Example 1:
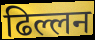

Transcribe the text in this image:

ढिल्लन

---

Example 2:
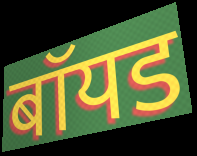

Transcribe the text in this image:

बॉयड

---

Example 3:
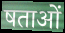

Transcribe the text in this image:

षताओं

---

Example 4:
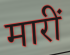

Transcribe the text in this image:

मारीं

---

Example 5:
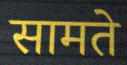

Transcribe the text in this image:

सामते